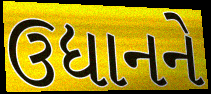
ઉદ્યાનને